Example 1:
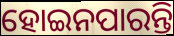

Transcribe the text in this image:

ହୋଇନପାରନ୍ତି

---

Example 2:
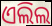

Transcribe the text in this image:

ଏଲିଲ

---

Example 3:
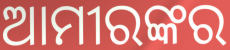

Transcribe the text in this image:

ଆମୀରଙ୍କର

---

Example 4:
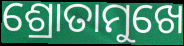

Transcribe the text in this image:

ଶ୍ରୋତାମୁଖେ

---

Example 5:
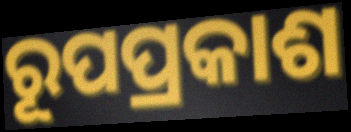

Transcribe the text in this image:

ରୂପପ୍ରକାଶ